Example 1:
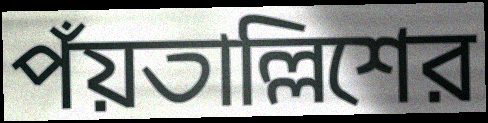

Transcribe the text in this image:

পঁয়তাল্লিশের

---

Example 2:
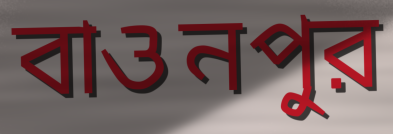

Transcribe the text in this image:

বাওনপুর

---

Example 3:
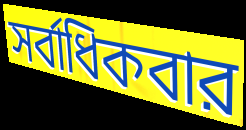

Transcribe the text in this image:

সর্বাধিকবার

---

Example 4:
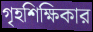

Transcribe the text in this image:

গৃহশিক্ষিকার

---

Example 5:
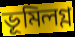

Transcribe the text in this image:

ভূমিলগ্ন